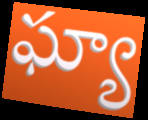
ఘ్యా